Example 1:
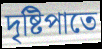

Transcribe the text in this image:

দৃষ্টিপাতে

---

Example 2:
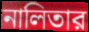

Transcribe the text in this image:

নালিতার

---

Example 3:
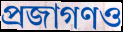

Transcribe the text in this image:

প্রজাগণও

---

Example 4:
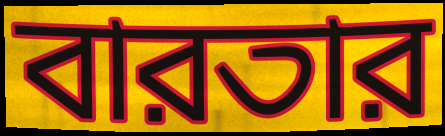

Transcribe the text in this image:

বারতার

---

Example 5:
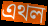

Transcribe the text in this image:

এথল